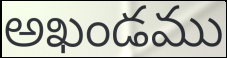
అఖండము